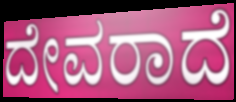
ದೇವರಾದೆ